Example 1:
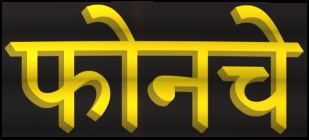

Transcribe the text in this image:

फोनचे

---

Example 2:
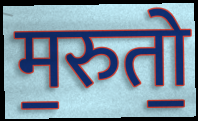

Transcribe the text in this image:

म॒रुतो॒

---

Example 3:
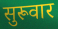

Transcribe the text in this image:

सुरूवार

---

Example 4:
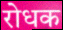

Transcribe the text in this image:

रोधक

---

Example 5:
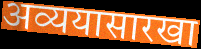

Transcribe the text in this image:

अव्ययासारखा